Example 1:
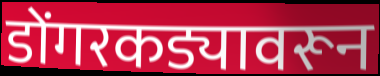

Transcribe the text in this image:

डोंगरकड्यावरून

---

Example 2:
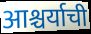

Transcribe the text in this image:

आश्चर्याची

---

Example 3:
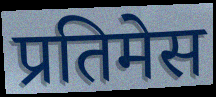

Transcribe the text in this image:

प्रतिमेस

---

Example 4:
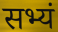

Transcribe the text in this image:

सभ्यं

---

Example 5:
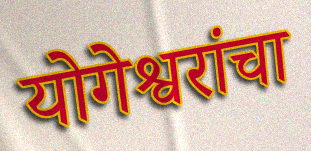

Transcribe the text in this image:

योगेश्वरांचा